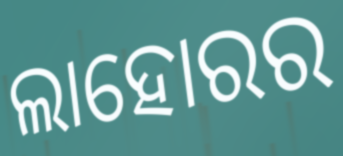
ଲାହୋରର